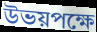
উভয়পক্ষে